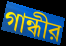
গান্ধীর